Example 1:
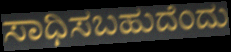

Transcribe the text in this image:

ಸಾಧಿಸಬಹುದೆಂದು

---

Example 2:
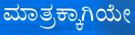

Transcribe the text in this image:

ಮಾತ್ರಕ್ಕಾಗಿಯೇ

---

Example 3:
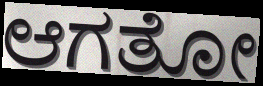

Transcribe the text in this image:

ಆಗತೋ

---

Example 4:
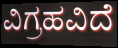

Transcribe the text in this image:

ವಿಗ್ರಹವಿದೆ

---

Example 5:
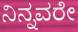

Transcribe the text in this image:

ನಿನ್ನವರೇ